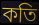
কতি